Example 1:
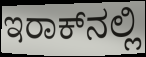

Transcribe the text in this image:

ಇರಾಕ್‌ನಲ್ಲಿ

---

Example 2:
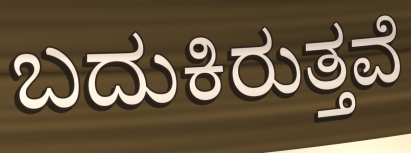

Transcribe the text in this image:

ಬದುಕಿರುತ್ತವೆ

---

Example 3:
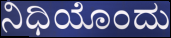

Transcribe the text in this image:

ನಿಧಿಯೊಂದು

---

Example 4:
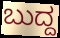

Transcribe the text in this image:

ಬುದ್ದ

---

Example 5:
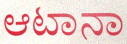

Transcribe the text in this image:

ಆಟಾನಾ